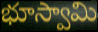
భూస్వామి